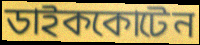
ডাইককোটেন